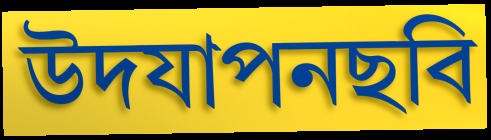
উদযাপনছবি